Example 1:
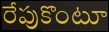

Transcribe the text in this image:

రేపుకొంటూ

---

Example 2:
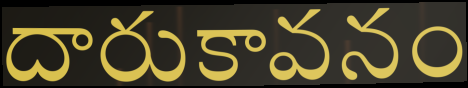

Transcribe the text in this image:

దారుకావనం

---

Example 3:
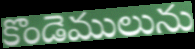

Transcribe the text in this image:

కొండెములును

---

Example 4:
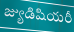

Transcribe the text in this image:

జ్యుడిషియరీ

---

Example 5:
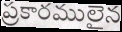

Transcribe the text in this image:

ప్రకారములైన